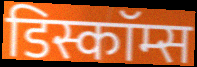
डिस्कॉम्स